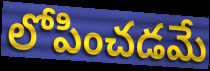
లోపించడమే